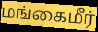
மங்கைமீர்